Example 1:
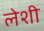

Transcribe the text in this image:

लेशी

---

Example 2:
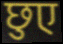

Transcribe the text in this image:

छुए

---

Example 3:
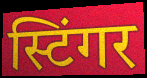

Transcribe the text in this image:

स्टिंगर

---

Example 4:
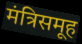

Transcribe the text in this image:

मंत्रिसमूह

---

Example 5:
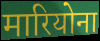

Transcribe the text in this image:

मारियोना